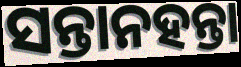
ସନ୍ତାନହନ୍ତା